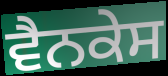
ਵੈਨਕੇਸ